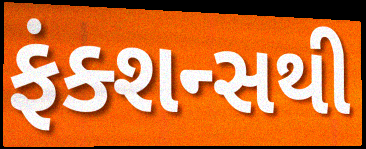
ફંક્શન્સથી